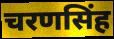
चरणसिंह